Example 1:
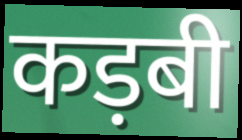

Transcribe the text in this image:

कड़बी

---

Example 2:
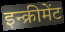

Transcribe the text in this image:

इन्क्रीमेंट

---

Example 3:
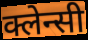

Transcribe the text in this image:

क्लेन्सी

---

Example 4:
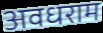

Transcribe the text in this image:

अवधराम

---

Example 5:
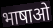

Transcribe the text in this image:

भाषाओ